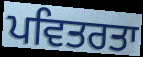
ਪਵਿਤਰਤਾ